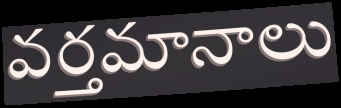
వర్తమానాలు